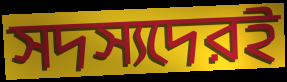
সদস্যদেরই